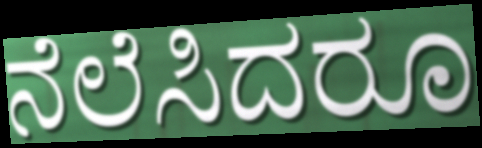
ನೆಲೆಸಿದರೂ